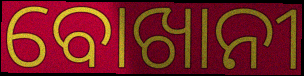
ବୋଖାନୀ